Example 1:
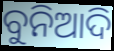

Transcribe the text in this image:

ବୁନିଆଦି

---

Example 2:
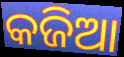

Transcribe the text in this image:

କଜିଆ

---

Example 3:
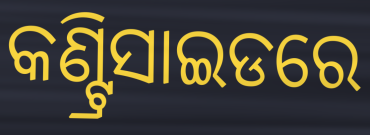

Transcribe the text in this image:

କଣ୍ଟ୍ରିସାଇଡରେ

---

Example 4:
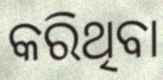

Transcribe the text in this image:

କରିଥିବା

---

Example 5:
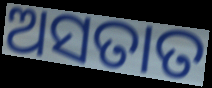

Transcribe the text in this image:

ଅସତାତ